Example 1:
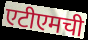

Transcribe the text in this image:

एटीएमची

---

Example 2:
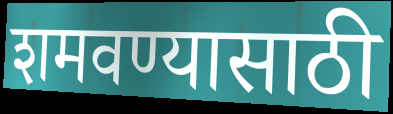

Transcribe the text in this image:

शमवण्यासाठी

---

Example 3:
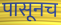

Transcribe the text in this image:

पासूनच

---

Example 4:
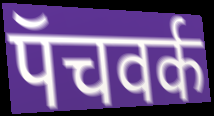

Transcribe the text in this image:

पॅचवर्क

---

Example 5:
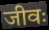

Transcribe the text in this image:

जीवः